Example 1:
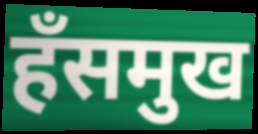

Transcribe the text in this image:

हँसमुख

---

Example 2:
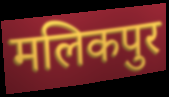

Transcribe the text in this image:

मलिकपुर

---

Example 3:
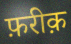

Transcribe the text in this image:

फ़रीक़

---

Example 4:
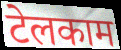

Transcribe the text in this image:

टेलकाम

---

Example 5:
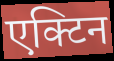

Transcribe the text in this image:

एक्टिन